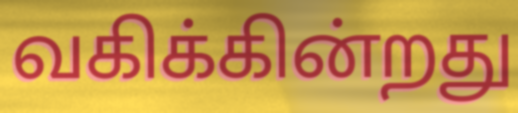
வகிக்கின்றது